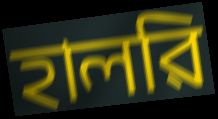
হালৱি